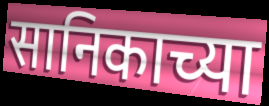
सानिकाच्या